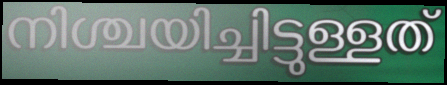
നിശ്ചയിച്ചിട്ടുള്ളത്